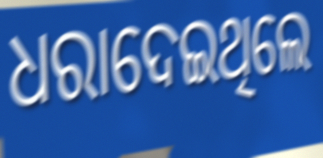
ଧରାଦେଇଥିଲେ